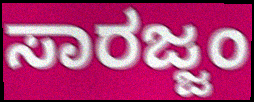
ಸಾರಜ್ಜಂ